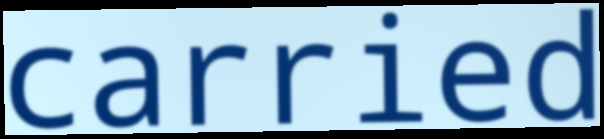
carried